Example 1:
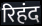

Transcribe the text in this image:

रिहंद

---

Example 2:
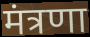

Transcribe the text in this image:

मंत्रणा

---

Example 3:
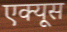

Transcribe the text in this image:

एक्यूस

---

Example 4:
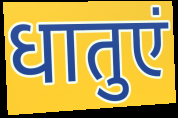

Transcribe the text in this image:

धातुएं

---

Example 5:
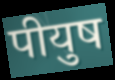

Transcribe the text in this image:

पीयुष